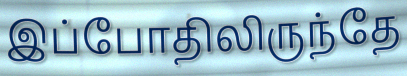
இப்போதிலிருந்தே